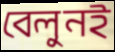
বেলুনই